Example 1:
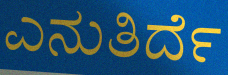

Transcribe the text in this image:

ಎನುತಿರ್ದೆ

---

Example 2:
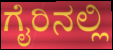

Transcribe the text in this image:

ಗೈರಿನಲ್ಲಿ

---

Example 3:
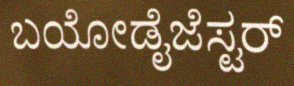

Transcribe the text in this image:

ಬಯೋಡೈಜೆಸ್ಟರ್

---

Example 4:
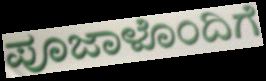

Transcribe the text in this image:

ಪೂಜಾಳೊಂದಿಗೆ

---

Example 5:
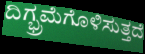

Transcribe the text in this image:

ದಿಗ್ಭ್ರಮೆಗೊಳಿಸುತ್ತದೆ